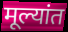
मूल्यांत